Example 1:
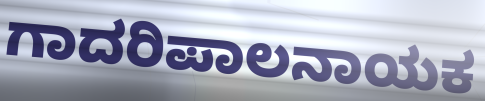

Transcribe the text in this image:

ಗಾದರಿಪಾಲನಾಯಕ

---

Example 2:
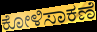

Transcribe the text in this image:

ಕೋಳಿಸಾಕಣೆ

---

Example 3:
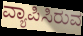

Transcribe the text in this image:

ವ್ಯಾಪಿಸಿರುವ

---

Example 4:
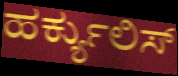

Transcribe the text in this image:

ಹರ್ಕ್ಯುಲಿಸ್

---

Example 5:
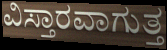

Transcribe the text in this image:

ವಿಸ್ತಾರವಾಗುತ್ತ